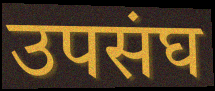
उपसंघ